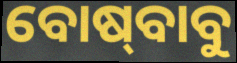
ବୋଷ୍‍ବାବୁ